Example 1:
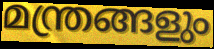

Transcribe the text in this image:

മന്ത്രങ്ങളും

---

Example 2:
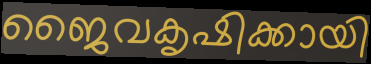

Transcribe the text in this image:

ജൈവകൃഷിക്കായി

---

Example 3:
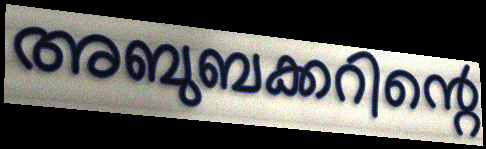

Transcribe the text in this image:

അബുബക്കറിന്റെ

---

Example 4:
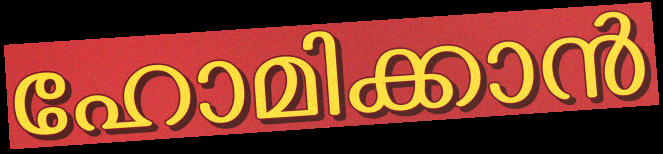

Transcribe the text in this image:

ഹോമിക്കാൻ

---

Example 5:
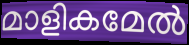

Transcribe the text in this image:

മാളികമേൽ